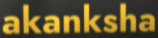
akanksha